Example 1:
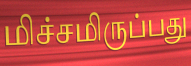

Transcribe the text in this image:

மிச்சமிருப்பது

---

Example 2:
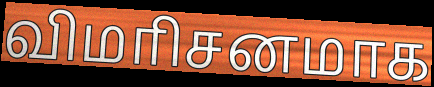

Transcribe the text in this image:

விமரிசனமாக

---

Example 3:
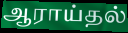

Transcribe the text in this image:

ஆராய்தல்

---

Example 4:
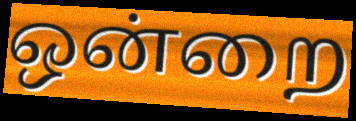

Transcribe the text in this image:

ஒன்றை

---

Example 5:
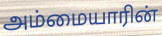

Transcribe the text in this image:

அம்மையாரின்